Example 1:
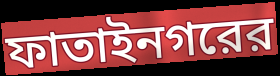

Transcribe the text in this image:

ফাতাইনগরের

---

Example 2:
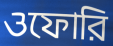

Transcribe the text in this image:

ওফোরি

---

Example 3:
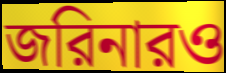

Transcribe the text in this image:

জরিনারও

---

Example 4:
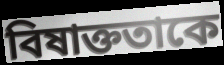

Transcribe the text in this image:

বিষাক্ততাকে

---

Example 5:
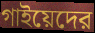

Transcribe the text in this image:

গাইয়েদের